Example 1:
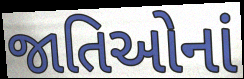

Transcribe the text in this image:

જાતિઓનાં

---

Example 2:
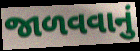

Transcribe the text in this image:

જાળવવાનું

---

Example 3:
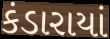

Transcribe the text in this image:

કંડારાયાં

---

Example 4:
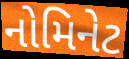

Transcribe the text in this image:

નોમિનેટ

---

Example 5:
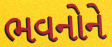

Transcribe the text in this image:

ભવનોને